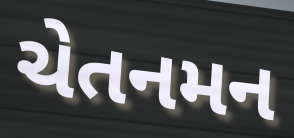
ચેતનમન